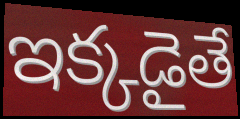
ఇక్కడైతే